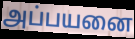
அப்பயனை